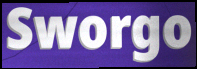
Sworgo